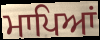
ਮਾਪਿਆਂ